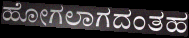
ಹೋಗಲಾಗದಂತಹ